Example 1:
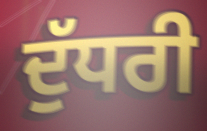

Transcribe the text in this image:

ਦੁੱਧਰੀ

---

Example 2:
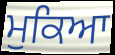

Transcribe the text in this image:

ਮੁਕਿਆ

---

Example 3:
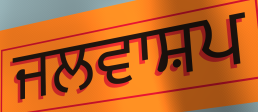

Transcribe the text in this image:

ਜਲਵਾਸ਼ਪ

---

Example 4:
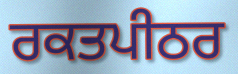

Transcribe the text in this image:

ਰਕਤਪੀਠਰ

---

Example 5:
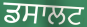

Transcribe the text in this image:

ਡਸਾਲਟ